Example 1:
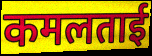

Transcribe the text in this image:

कमलताई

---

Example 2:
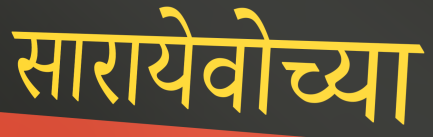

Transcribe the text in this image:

सारायेवोच्या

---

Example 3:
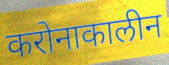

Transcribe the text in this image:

करोनाकालीन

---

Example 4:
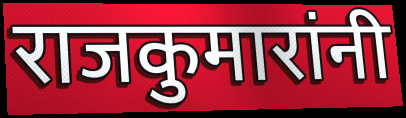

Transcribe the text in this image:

राजकुमारांनी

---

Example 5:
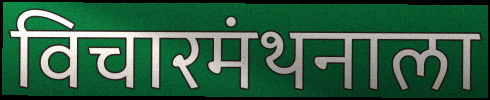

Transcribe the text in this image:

विचारमंथनाला